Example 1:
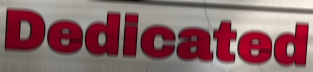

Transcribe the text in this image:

Dedicated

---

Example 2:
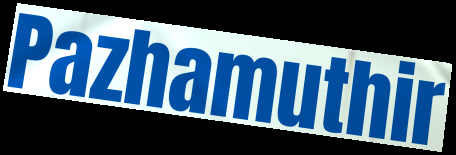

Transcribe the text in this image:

Pazhamuthir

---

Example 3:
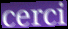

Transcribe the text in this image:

cerci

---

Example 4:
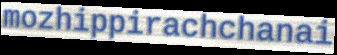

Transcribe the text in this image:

mozhippirachchanai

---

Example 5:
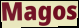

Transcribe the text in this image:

Magos